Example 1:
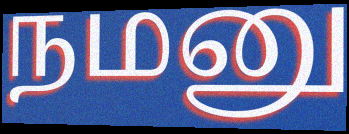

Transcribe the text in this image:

நமனு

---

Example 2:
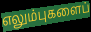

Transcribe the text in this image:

எலும்புகளைப்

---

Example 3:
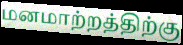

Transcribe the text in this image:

மனமாற்றத்திற்கு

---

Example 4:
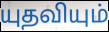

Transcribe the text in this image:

யுதவியும்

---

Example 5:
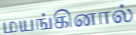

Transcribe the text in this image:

மயங்கினால்